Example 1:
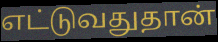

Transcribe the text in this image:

எட்டுவதுதான்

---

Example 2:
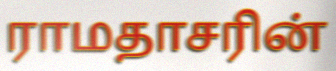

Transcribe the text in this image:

ராமதாசரின்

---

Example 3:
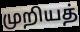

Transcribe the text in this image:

முறியத்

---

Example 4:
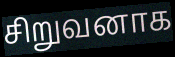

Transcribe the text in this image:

சிறுவனாக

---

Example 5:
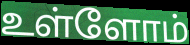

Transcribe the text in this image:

உள்ளோம்